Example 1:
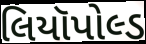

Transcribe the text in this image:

લિયૉપોલ્ડ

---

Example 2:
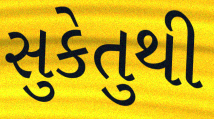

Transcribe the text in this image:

સુકેતુથી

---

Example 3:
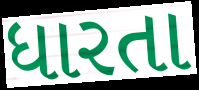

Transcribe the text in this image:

ધારતા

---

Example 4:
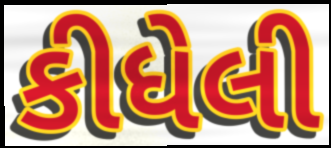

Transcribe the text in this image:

કીધેલી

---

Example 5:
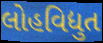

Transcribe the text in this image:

લોહવિદ્યુત